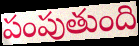
పంపుతుంది